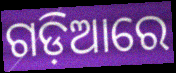
ଗଡ଼ିଆରେ